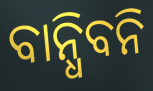
ବାନ୍ଧିବନି